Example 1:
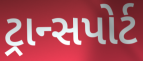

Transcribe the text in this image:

ટ્રાન્સપોર્ટ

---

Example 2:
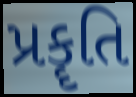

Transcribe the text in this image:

પ્રકૄતિ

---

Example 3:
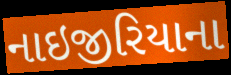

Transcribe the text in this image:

નાઇજીરિયાના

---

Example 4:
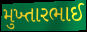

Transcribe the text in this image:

મુખ્તારભાઈ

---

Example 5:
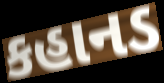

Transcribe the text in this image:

કહાનડ